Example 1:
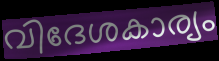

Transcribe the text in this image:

വിദേശകാര്യം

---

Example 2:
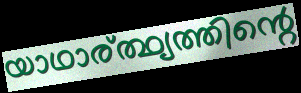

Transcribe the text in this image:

യാഥാര്ത്ഥ്യത്തിന്റെ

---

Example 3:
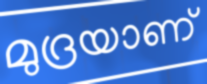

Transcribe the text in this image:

മുദ്രയാണ്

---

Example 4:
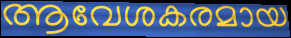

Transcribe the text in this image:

ആവേശകരമായ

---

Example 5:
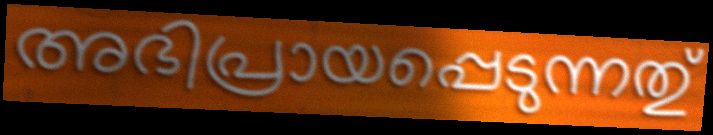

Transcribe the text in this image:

അഭിപ്രായപ്പെടുന്നതു്